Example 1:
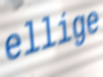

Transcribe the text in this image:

ellige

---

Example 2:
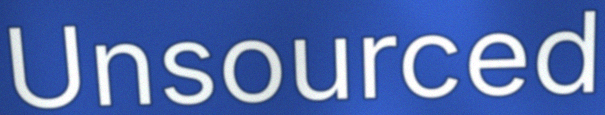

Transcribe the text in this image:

Unsourced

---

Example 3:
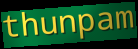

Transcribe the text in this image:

thunpam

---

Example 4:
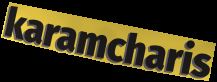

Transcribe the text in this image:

karamcharis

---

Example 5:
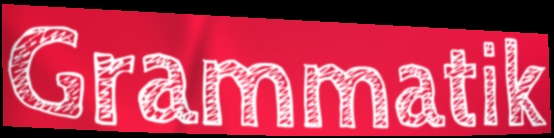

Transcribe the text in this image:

Grammatik